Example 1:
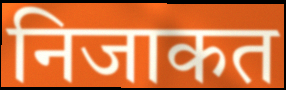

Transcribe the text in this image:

निजाकत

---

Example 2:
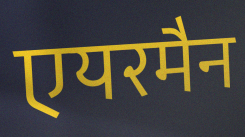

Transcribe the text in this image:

एयरमैन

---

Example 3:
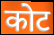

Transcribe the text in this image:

कोट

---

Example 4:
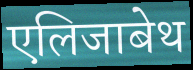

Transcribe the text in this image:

एलिजाबेथ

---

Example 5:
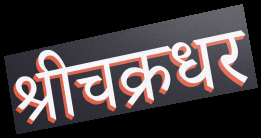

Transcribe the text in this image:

श्रीचक्रधर